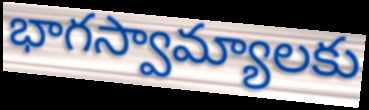
భాగస్వామ్యాలకు